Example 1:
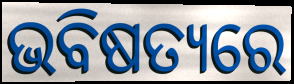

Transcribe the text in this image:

ଭବିଷତ୍ୟରେ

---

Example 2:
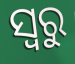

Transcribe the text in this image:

ସ୍ୱରୁ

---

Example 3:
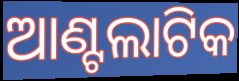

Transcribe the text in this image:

ଆଣ୍ଟଲାଟିକ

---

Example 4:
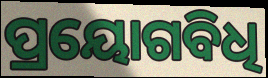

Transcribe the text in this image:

ପ୍ରୟୋଗବିଧି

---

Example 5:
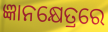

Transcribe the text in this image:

ଜ୍ଞାନକ୍ଷେତ୍ରରେ